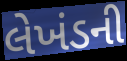
લેખંડની